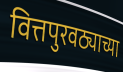
वित्तपुरवठ्याच्या